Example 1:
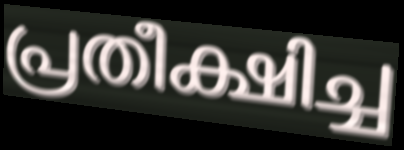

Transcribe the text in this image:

പ്രതീക്ഷിച്ച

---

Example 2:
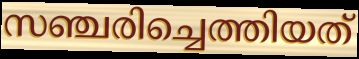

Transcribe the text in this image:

സഞ്ചരിച്ചെത്തിയത്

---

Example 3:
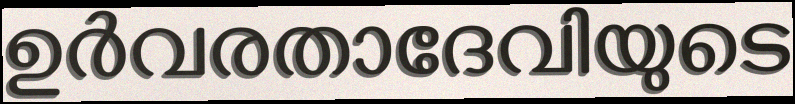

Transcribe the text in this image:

ഉർവരതാദേവിയുടെ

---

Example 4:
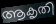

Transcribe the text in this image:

ആകൃതി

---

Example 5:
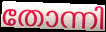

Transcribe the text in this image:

തോന്നി